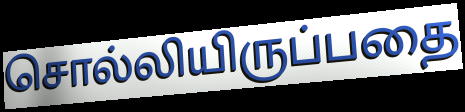
சொல்லியிருப்பதை